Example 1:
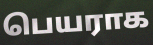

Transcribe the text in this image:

பெயராக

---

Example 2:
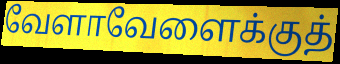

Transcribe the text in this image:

வேளாவேளைக்குத்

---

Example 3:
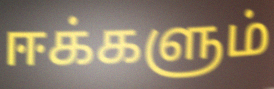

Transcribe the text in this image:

ஈக்களும்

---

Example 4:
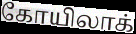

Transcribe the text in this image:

கோயிலாக்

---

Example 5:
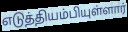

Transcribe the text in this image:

எடுத்தியம்பியுள்ளார்